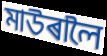
মাউৰালৈ